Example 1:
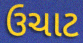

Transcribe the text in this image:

ઉચાટ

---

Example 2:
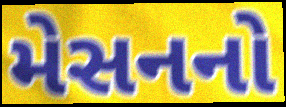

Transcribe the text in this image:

મેસનનો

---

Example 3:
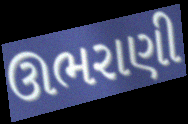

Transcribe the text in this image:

ઊભરાણી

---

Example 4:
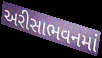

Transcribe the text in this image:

અરીસાભવનમાં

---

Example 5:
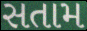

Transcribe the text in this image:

સતામ